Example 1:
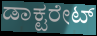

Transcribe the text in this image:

ಡಾಕ್ಟರೇಟ್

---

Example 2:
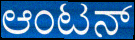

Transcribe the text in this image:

ಆಂಟನ್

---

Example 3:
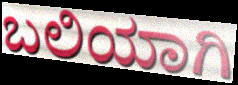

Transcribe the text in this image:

ಬಲಿಯಾಗಿ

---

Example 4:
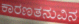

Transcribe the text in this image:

ಕಾರಣತನುವಿನ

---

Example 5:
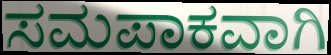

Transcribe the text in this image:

ಸಮಪಾಕವಾಗಿ